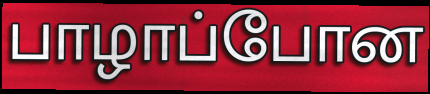
பாழாப்போன